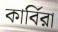
কার্বিরা